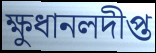
ক্ষুধানলদীপ্ত